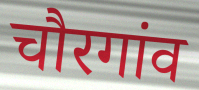
चौरगांव